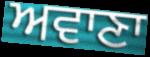
ਅਵਾਣਾ